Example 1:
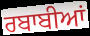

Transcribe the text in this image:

ਰਬਾਬੀਆਂ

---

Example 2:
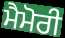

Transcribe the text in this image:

ਮੈਮੋਰੀ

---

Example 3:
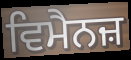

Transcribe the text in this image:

ਵਿਮੈਨਜ਼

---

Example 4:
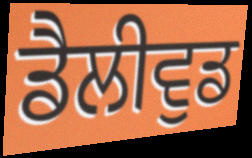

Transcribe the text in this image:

ਡੈਲੀਵੁਡ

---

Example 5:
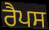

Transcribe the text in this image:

ਰੈਪਸ